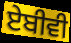
ਏਬੀਵੀ